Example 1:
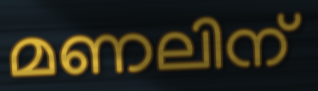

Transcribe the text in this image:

മണലിന്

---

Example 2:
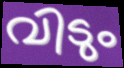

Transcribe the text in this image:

വിടും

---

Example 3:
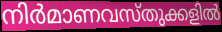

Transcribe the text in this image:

നിർമാണവസ്തുക്കളിൽ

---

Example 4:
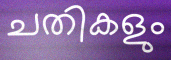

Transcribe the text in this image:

ചതികളും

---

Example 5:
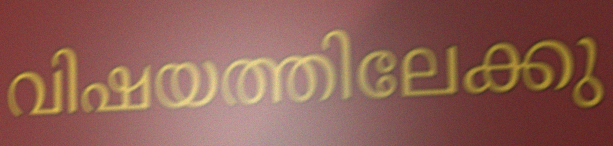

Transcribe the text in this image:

വിഷയത്തിലേക്കു